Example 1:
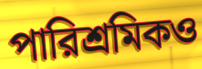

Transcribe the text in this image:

পারিশ্রমিকও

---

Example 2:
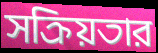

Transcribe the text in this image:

সক্রিয়তার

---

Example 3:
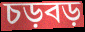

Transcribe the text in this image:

চড়বড়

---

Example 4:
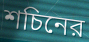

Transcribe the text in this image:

শচিনের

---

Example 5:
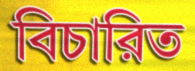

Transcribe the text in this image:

বিচারিত